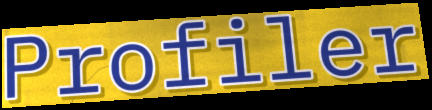
Profiler